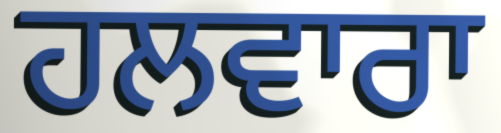
ਹਲਵਾਰਾ